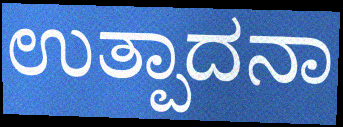
ಉತ್ಪಾದನಾ